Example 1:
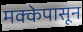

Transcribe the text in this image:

मक्केपासून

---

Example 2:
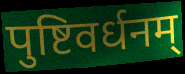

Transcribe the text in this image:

पुष्टिवर्धनम्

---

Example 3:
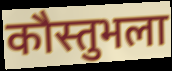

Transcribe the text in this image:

कौस्तुभला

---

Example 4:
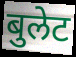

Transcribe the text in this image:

बुलेट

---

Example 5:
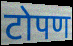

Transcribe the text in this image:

टोपण